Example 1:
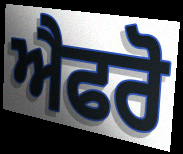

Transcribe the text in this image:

ਐਫਰੋ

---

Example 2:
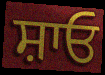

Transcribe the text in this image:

ਸ਼ਾਓ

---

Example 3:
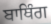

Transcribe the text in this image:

ਬਾਥਿੰਗ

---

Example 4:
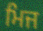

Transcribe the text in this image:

ਮਿਜ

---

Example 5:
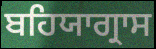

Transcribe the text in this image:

ਬਹਿਯਾਗ੍ਰਾਸ